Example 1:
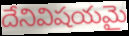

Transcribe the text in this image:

దేనివిషయమై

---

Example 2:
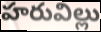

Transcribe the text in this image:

హరువిల్లు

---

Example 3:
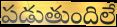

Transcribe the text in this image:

పడుతుందిలే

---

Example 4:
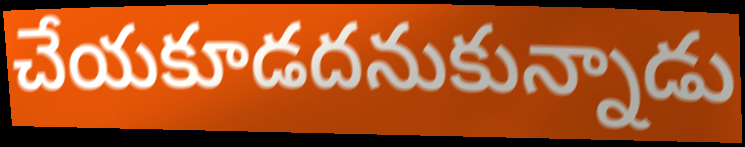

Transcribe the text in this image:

చేయకూడదనుకున్నాడు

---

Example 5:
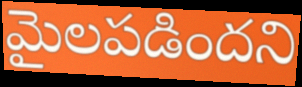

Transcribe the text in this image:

మైలపడిందని